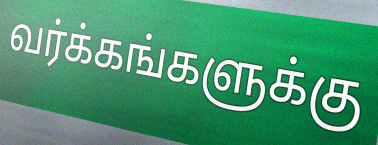
வர்க்கங்களுக்கு